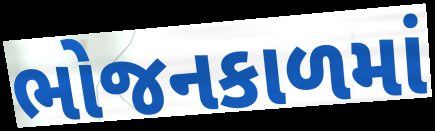
ભોજનકાળમાં